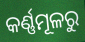
କର୍ଣ୍ଣମୂଳରୁ